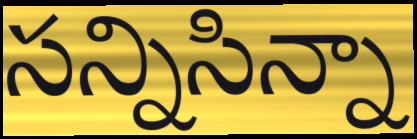
సన్నిసిన్నా